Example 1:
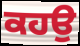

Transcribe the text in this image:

ਕਹਉ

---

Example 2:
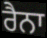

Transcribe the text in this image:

ਰੈਨਾ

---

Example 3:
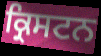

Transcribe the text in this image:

ਕ੍ਰਿਸਟਨ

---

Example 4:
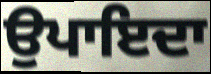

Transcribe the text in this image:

ਉਪਾਇਦਾ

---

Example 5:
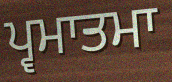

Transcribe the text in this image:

ਪ੍ਵਮਾਤਮਾ